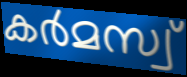
കർമസ്വ്